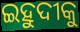
ଇହୁଦୀକୁ